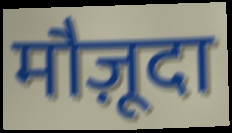
मौज़ूदा